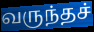
வருந்தச்